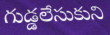
గుడ్డలేసుకుని